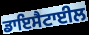
ਡਾਇਸੈਟਾਈਲ